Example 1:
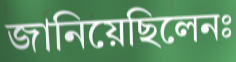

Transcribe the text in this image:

জানিয়েছিলেনঃ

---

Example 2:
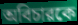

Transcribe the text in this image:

অবিচারকে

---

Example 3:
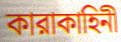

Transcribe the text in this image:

কারাকাহিনী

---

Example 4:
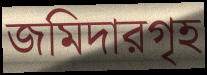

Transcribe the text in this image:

জমিদারগৃহ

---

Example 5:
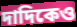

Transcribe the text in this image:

দাদিকেও